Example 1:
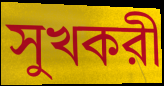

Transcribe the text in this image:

সুখকরী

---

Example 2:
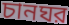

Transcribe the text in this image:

চানঘর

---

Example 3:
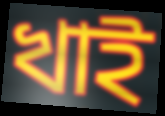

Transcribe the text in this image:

খাই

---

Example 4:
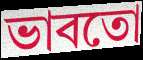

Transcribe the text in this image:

ভাবতো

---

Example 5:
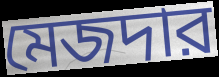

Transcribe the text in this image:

মেজদার